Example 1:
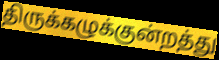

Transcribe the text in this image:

திருக்கழுக்குன்றத்து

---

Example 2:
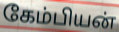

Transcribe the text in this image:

கேம்பியன்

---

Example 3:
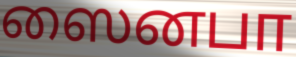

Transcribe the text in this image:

ஸைனபா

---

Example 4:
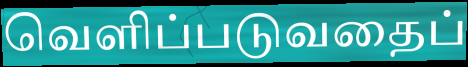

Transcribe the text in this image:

வெளிப்படுவதைப்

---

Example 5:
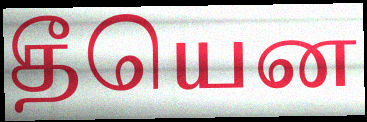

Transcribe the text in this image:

தீயென